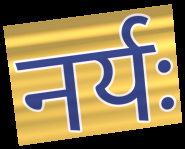
नर्यः